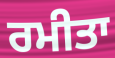
ਰਮੀਤਾ